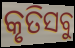
କୃତିସବୁ